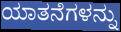
ಯಾತನೆಗಳನ್ನು